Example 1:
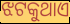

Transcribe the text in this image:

ଝଟକୁଥାଏ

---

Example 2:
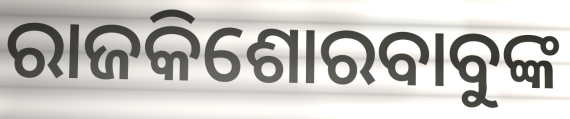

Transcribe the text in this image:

ରାଜକିଶୋରବାବୁଙ୍କ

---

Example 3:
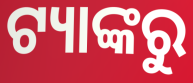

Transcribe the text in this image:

ଟ୍ୟାଙ୍କରୁ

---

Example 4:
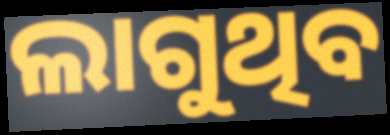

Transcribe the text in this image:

ଲାଗୁଥିବ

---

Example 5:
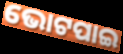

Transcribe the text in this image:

ଭୋଟପାଇ